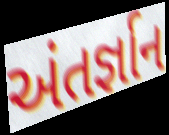
અંતર્જ્ઞાન